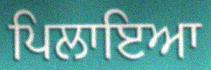
ਪਿਲਾਇਆ